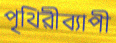
পৃথিৱীব্যাপী